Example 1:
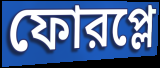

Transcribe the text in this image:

ফোরপ্লে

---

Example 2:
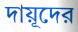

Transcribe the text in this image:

দায়ূদের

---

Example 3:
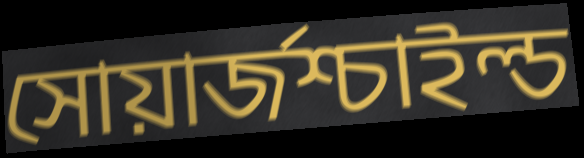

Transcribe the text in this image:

সোয়ার্জশ্চাইল্ড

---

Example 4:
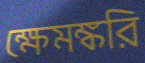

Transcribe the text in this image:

ক্ষেমঙ্করি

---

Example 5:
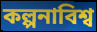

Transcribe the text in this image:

কল্পনাবিশ্ব